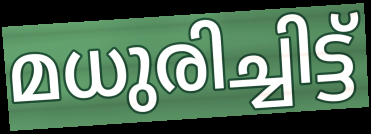
മധുരിച്ചിട്ട്